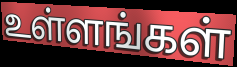
உள்ளங்கள்